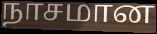
நாசமான